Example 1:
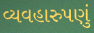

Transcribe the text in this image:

વ્યવહારુપણું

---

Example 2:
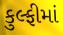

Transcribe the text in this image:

કુલ્ફીમાં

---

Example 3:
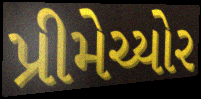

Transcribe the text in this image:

પ્રીમેચ્યોર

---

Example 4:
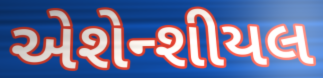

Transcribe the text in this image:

એશેન્શીયલ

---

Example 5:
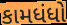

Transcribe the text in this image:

કામધંધો